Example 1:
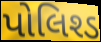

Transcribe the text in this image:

પોલિશ્ડ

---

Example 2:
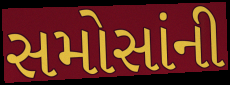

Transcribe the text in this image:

સમોસાંની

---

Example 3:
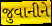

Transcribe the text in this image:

જુવાનીને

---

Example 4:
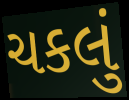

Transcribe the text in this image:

ચકલું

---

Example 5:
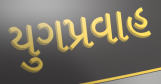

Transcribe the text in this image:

યુગપ્રવાહ